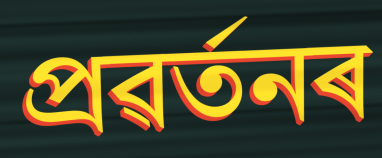
প্ৰৱৰ্তনৰ